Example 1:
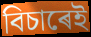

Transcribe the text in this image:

বিচাৰেই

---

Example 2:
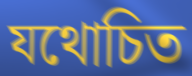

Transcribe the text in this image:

যথোচিত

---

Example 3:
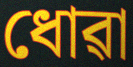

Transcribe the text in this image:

ধোৱা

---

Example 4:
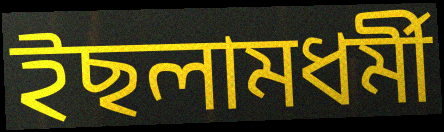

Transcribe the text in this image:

ইছলামধৰ্মী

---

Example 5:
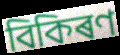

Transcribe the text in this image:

বিকিৰণ